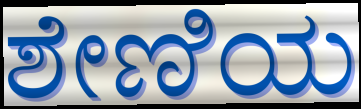
ಶೇಣಿಯ